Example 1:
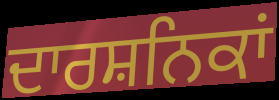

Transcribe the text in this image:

ਦਾਰਸ਼ਨਿਕਾਂ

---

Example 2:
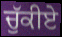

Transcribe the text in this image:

ਚੁੱਕੀਏ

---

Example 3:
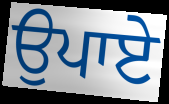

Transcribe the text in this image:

ਉਪਾਏ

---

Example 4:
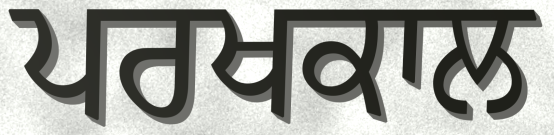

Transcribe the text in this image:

ਪਰਖਕਾਲ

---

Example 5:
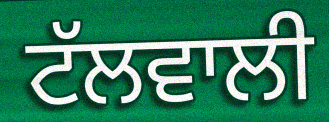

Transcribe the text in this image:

ਟੱਲਵਾਲੀ